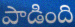
పాడింది